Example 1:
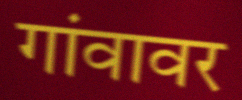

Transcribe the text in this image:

गांवावर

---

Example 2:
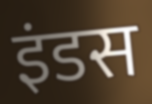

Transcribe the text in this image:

इंडस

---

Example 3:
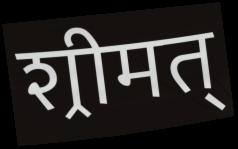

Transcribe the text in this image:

श्रीमत्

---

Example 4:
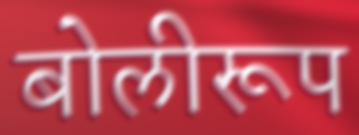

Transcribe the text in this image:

बोलीरूप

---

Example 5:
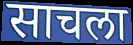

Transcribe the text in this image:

साचला